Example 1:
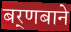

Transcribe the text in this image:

बर्णबाने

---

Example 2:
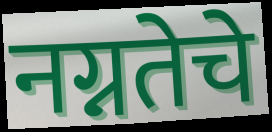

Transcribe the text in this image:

नग्नतेचे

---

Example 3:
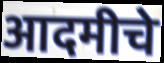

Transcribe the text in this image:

आदमीचे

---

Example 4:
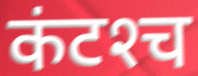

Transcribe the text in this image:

कंटश्च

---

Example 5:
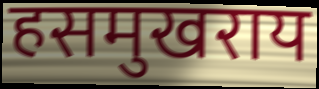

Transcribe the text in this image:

हसमुखराय